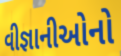
વીજ્ઞાનીઓનો